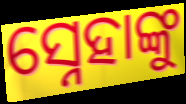
ସ୍ନେହାଙ୍କୁ